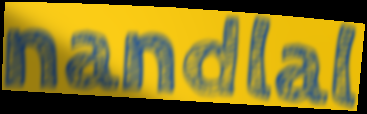
nandlal